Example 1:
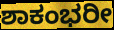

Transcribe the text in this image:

ಶಾಕಂಭರೀ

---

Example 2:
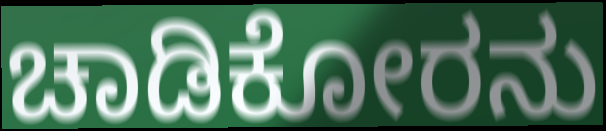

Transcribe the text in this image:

ಚಾಡಿಕೋರನು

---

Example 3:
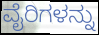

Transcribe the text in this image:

ವೈರಿಗಳನ್ನು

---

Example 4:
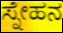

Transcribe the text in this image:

ಸ್ನೇಹನ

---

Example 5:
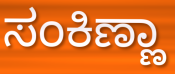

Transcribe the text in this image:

ಸಂಕಿಣ್ಣಾ